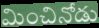
మించినోడు